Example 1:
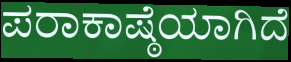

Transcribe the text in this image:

ಪರಾಕಾಷ್ಠೆಯಾಗಿದೆ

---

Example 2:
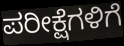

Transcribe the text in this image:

ಪರೀಕ್ಷೆಗಳಿಗೆ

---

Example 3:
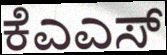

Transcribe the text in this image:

ಕೆಎಎಸ್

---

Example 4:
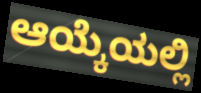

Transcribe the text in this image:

ಆಯ್ಕೆಯಲ್ಲಿ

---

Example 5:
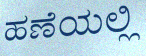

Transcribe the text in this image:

ಹಣೆಯಲ್ಲಿ